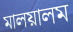
মালয়ালম